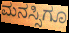
ಮನಸ್ಸಿಗೂ